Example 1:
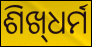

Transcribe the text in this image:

ଶିଖ୍‌ଧର୍ମ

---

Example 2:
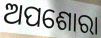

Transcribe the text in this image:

ଅପଶୋରା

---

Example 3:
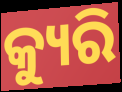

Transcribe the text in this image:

କ୍ୟୁରି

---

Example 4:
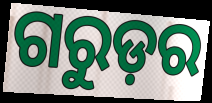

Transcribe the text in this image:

ଗରୁଡ଼ର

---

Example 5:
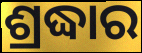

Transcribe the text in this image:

ଶ୍ରଦ୍ଧାର